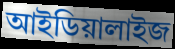
আইডিয়ালাইজ